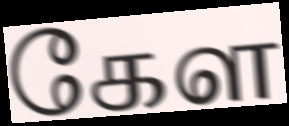
கேள